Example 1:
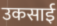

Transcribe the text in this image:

उकसाई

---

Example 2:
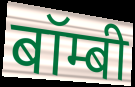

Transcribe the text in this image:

बॉम्बी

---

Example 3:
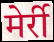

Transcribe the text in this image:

मेर्री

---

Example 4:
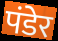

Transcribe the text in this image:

पंडेर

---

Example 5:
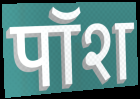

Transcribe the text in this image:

पॉश